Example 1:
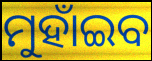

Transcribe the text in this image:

ମୁହାଁଇବ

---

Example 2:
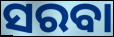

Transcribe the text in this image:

ସରବା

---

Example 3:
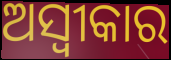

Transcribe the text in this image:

ଅସ୍ବୀକାର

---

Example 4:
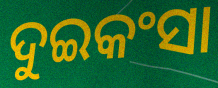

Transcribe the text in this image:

ଦୁଇକଂସା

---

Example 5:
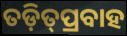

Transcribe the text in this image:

ତଡ଼ିତ୍‌ପ୍ରବାହ